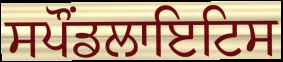
ਸਪੌਂਡਲਾਇਟਿਸ